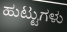
ಹುಟ್ಟುಗಳು